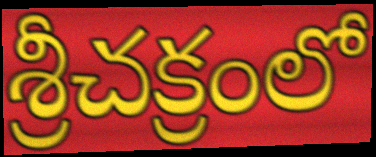
శ్రీచక్రంలో